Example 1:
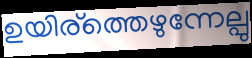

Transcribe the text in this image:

ഉയിര്ത്തെഴുന്നേല്പു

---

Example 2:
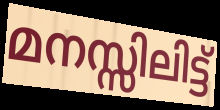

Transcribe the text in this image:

മനസ്സിലിട്ട്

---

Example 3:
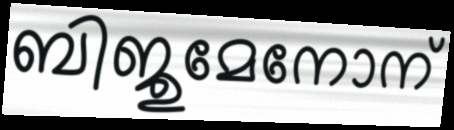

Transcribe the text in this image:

ബിജുമേനോന്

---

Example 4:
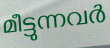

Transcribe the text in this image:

മീട്ടുന്നവർ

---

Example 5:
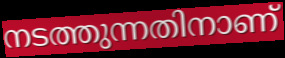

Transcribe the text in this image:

നടത്തുന്നതിനാണ്